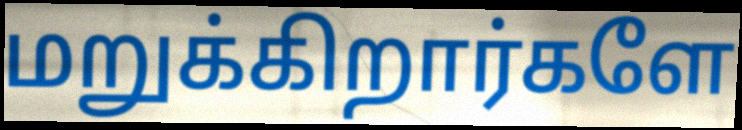
மறுக்கிறார்களே